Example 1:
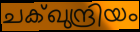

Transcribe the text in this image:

ചക്ഖുന്ദ്രിയം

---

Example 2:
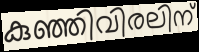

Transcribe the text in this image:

കുഞ്ഞിവിരലിന്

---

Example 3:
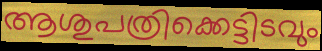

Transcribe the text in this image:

ആശുപത്രിക്കെട്ടിടവും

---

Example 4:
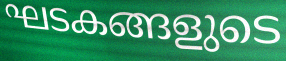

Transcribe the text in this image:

ഘടകങ്ങളുടെ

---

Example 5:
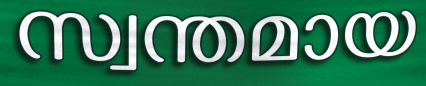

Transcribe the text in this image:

സ്വന്തമായ